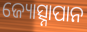
ଜ୍ୟୋତ୍ସ୍ନାପାନ